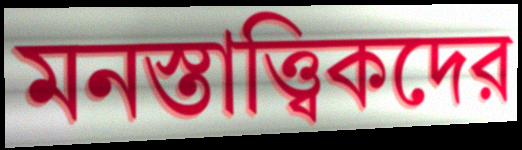
মনস্তাত্ত্বিকদের